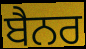
ਬੈਨਰ